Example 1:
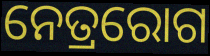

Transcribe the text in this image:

ନେତ୍ରରୋଗ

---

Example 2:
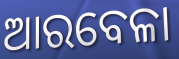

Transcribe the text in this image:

ଆରବେଳା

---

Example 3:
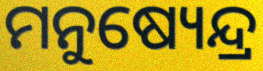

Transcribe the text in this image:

ମନୁଷ୍ୟେନ୍ଦ୍ର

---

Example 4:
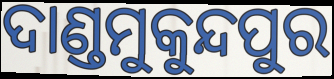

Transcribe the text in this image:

ଦାଣ୍ଡମୁକୁନ୍ଦପୁର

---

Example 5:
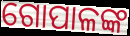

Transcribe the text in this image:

ଗୋପାଳଙ୍କ